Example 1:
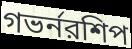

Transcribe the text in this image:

গভর্নরশিপ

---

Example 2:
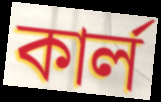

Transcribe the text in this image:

কার্ল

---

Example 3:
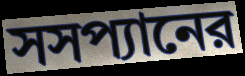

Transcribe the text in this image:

সসপ্যানের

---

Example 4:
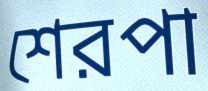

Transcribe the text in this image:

শেরপা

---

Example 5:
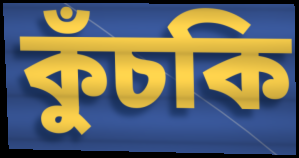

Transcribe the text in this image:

কুঁচকি